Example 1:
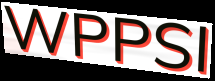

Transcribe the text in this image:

WPPSI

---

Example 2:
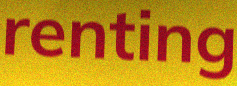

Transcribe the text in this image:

renting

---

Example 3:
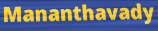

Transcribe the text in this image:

Mananthavady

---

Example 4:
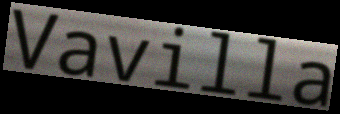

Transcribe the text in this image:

Vavilla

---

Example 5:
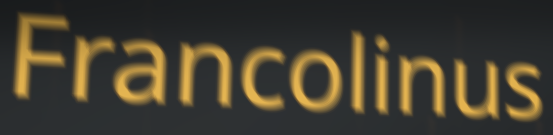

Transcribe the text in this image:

Francolinus